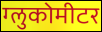
ग्लुकोमीटर